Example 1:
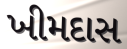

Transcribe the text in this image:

ખીમદાસ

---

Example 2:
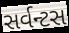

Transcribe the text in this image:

સર્વન્ટસ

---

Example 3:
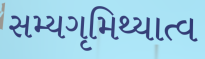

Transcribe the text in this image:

સમ્યગૃમિથ્યાત્વ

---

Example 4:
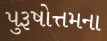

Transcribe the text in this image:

પુરૂષોત્તમના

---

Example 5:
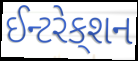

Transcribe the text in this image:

ઈન્ટરેક્‌શન